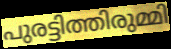
പുരട്ടിത്തിരുമ്മി